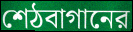
শেঠবাগানের